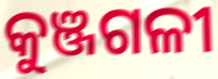
କୁଞ୍ଜଗଳୀ